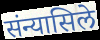
संन्यासिले